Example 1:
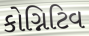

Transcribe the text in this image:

કોગ્નિટિવ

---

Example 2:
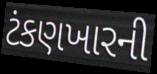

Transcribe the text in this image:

ટંકણખારની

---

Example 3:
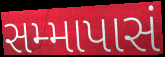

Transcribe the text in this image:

સમ્માપાસં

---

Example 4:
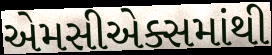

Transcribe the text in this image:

એમસીએક્સમાંથી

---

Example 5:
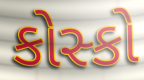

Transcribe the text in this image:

કોસ્કો